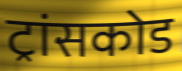
ट्रांसकोड